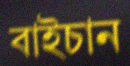
বাইচান